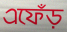
এফেঁড়